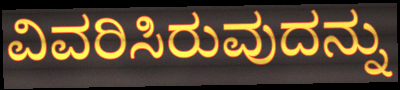
ವಿವರಿಸಿರುವುದನ್ನು